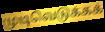
முடிவெடுக்கக்